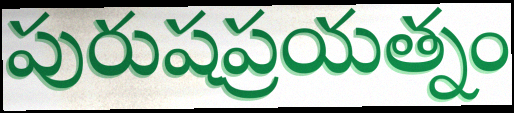
పురుషప్రయత్నం